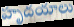
హృదయాలు